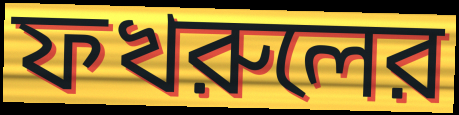
ফখরুলের